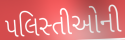
પલિસ્તીઓની